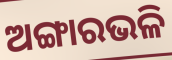
ଅଙ୍ଗାରଭଳି